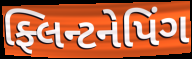
ફ્લિન્ટનેપિંગ